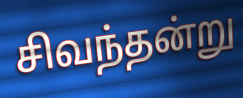
சிவந்தன்று